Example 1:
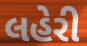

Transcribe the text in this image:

લહેરી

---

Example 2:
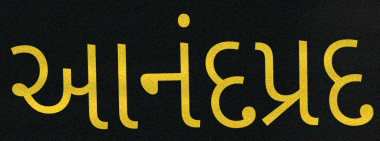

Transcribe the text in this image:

આનંદપ્રદ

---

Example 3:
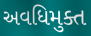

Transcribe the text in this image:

અવધિમુક્ત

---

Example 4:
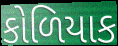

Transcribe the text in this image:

કોળિયાક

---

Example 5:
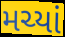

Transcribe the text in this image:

મચ્યાં